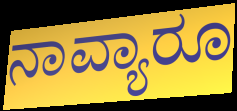
ನಾವ್ಯಾರೂ